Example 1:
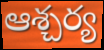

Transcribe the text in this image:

ఆశ్చర్య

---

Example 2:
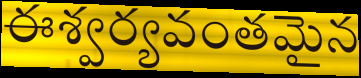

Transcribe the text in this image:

ఈశ్వర్యవంతమైన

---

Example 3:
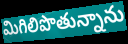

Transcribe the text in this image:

మిగిలిపొతున్నాను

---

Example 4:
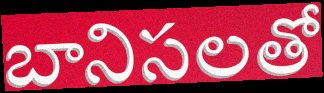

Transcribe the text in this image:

బానిసలతో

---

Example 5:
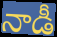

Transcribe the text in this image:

నాడీ